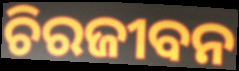
ଚିରଜୀବନ